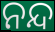
ନନ୍ଦ